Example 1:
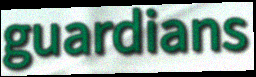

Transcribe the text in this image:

guardians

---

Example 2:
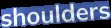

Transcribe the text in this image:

shoulders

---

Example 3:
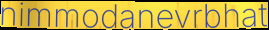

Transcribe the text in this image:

nimmodanevrbhat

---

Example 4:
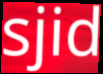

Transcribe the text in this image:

sjid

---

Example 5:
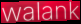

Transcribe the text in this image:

walank